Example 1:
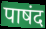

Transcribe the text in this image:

पाषंद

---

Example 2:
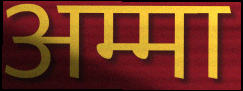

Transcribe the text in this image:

अम्‍मा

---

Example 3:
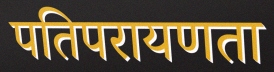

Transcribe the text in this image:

पतिपरायणता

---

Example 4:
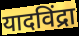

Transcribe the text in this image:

यादविंद्रा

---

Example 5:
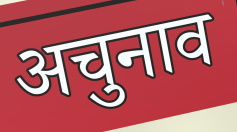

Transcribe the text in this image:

अचुनाव